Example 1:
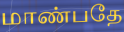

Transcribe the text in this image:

மாண்பதே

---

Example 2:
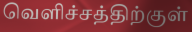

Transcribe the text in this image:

வெளிச்சத்திற்குள்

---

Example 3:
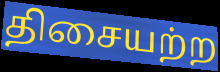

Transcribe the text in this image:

திசையற்ற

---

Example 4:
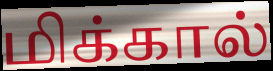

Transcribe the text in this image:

மிக்கால்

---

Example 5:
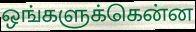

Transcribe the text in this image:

ஒங்களுக்கென்ன